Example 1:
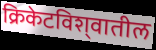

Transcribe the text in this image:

क्रिकेटविश्वातील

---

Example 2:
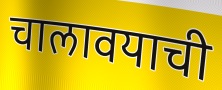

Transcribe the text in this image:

चालावयाची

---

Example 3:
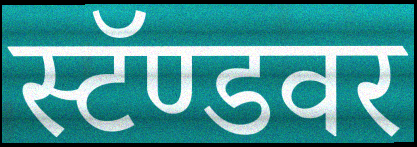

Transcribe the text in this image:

स्टॅण्डवर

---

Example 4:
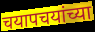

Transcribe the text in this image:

चयापचयांच्या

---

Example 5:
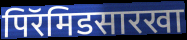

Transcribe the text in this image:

पिरॅमिडसारखा